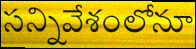
సన్నివేశంలోనూ